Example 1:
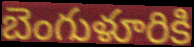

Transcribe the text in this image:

బెంగుళూరికి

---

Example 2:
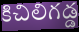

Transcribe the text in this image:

కిచిలిగడ్డ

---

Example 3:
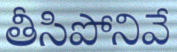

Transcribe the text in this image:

తీసిపోనివే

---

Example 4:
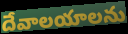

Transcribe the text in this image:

దేవాలయాలను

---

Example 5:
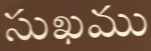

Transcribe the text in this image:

సుఖము